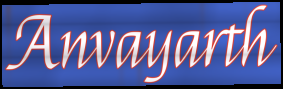
Anvayarth